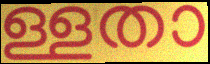
ള്ളതാ